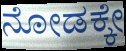
ನೋಡಕ್ಕೇ